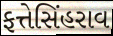
ફત્તેસિંહરાવ